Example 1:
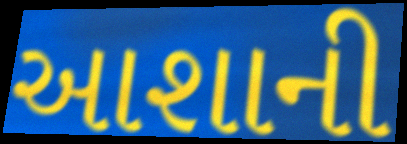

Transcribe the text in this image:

આશાની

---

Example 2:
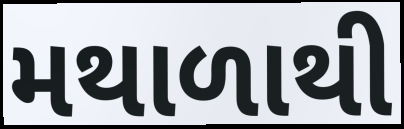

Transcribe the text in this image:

મથાળાથી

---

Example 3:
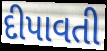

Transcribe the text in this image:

દીપાવતી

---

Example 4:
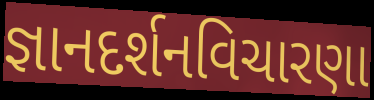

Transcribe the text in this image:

જ્ઞાનદર્શનવિચારણા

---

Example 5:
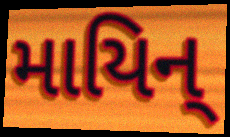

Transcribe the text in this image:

માયિન્